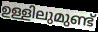
ഉള്ളിലുമുണ്ട്